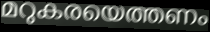
മറുകരയെത്തണം